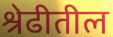
श्रेढीतील